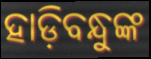
ହାଡ଼ିବନ୍ଧୁଙ୍କ